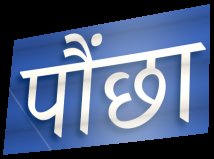
पौंछा